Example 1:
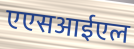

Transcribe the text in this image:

एएसआईएल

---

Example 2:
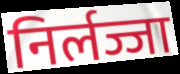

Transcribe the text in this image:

निर्लज्जा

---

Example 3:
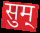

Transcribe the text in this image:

सुम्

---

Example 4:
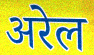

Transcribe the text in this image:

अरेल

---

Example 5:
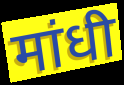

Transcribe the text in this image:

मांधी